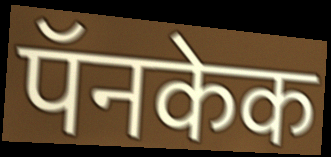
पॅनकेक